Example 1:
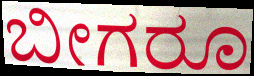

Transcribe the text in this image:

ಬೀಗರೂ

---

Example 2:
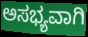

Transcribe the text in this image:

ಅಸಭ್ಯವಾಗಿ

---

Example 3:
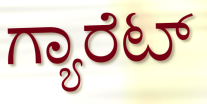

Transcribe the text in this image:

ಗ್ಯಾರೆಟ್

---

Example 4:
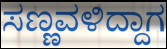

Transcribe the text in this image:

ಸಣ್ಣವಳಿದ್ದಾಗ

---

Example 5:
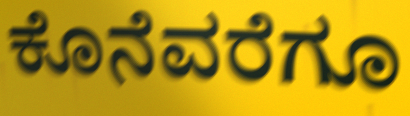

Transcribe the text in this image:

ಕೊನೆವರೆಗೂ